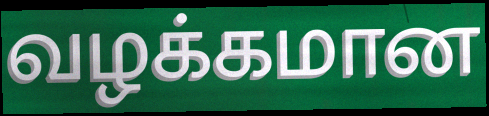
வழக்கமான